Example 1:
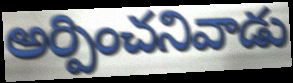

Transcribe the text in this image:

అర్పించనివాడు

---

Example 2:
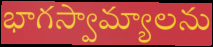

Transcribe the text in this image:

భాగస్వామ్యాలను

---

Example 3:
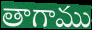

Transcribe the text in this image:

తాగాము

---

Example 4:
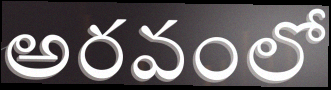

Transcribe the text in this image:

అరవంలో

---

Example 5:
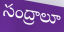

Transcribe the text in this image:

సంద్రాలూ